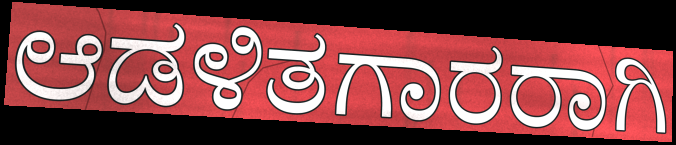
ಆಡಳಿತಗಾರರಾಗಿ